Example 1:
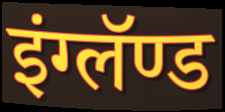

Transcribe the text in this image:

इंग्लॅण्ड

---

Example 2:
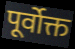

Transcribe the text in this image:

पूर्वोक्त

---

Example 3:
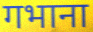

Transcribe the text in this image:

गभाना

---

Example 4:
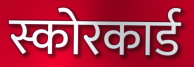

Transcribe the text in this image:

स्कोरकार्ड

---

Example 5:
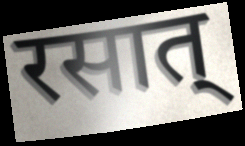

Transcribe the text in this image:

रसात्